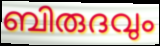
ബിരുദവും